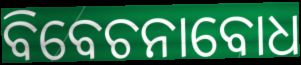
ବିବେଚନାବୋଧ